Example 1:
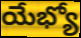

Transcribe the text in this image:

యేభ్యో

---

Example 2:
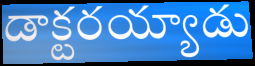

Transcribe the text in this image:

డాక్టరయ్యాడు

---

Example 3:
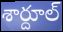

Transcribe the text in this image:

శార్దూల్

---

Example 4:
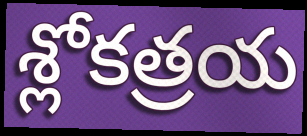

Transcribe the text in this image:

శ్లోకత్రయ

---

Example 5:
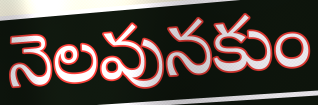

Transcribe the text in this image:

నెలవునకుం